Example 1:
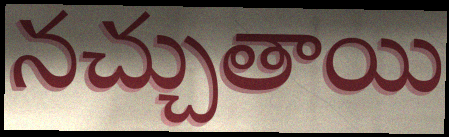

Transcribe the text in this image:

నచ్చుతాయి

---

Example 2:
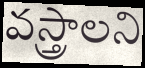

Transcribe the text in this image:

వస్త్రాలని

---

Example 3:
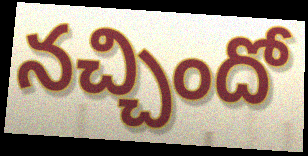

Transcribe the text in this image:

నచ్చిందో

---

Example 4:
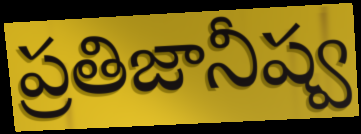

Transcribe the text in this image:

ప్రతిజానీష్వ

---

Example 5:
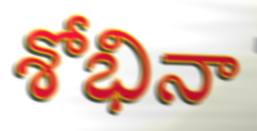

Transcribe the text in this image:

శోభినా